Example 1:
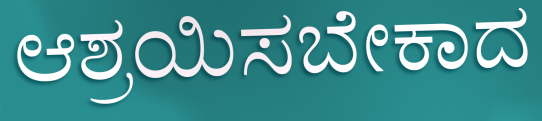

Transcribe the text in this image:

ಆಶ್ರಯಿಸಬೇಕಾದ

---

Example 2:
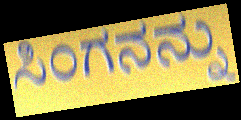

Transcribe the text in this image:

ಸಿಂಗನನ್ನು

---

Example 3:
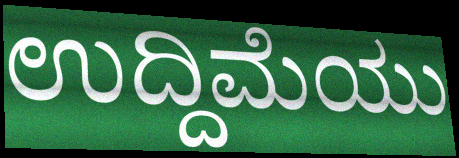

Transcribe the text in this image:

ಉದ್ದಿಮೆಯು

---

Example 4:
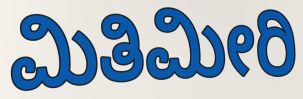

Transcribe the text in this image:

ಮಿತಿಮೀರಿ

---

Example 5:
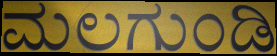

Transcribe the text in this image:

ಮಲಗುಂಡಿ